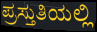
ಪ್ರಸ್ತುತಿಯಲ್ಲಿ